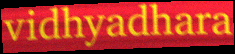
vidhyadhara